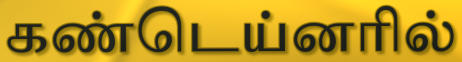
கண்டெய்னரில்